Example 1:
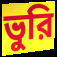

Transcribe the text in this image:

ভুরি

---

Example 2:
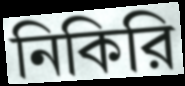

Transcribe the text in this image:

নিকিরি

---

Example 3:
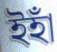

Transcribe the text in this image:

ইহাঁ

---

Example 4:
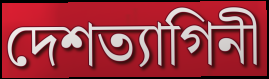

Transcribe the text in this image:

দেশত্যাগিনী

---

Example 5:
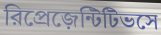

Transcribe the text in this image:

রিপ্রেজ়েন্টিটিভসে